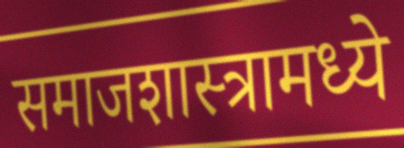
समाजशास्त्रामध्ये